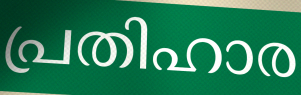
പ്രതിഹാര